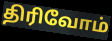
திரிவோம்